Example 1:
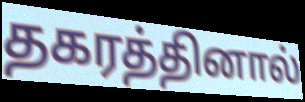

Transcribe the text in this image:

தகரத்தினால்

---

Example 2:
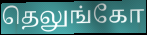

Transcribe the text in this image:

தெலுங்கோ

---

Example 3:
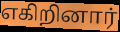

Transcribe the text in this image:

எகிறினார்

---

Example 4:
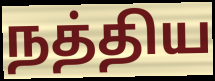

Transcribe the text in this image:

நத்திய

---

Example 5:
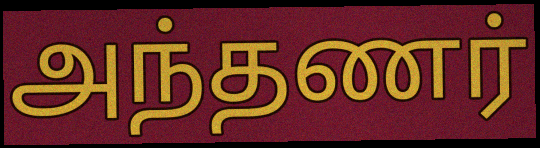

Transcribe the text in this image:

அந்தணர்